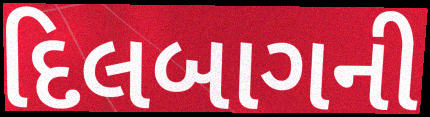
દિલબાગની